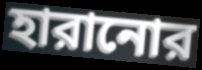
হারানোর